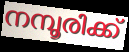
നമ്പൂരിക്ക്